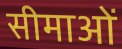
सीमाओं